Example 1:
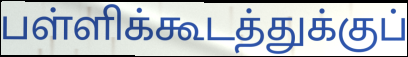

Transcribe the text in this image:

பள்ளிக்கூடத்துக்குப்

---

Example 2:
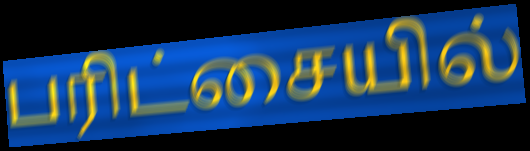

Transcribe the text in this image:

பரிட்சையில்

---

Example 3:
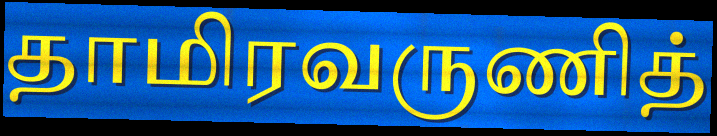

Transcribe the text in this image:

தாமிரவருணித்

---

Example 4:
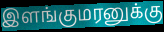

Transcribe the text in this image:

இளங்குமரனுக்கு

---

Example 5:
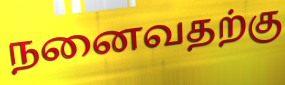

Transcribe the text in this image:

நனைவதற்கு